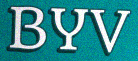
BYV